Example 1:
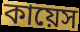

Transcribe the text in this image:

কায়েস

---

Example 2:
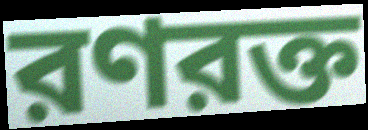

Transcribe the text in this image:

রণরক্ত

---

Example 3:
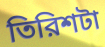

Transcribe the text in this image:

তিরিশটা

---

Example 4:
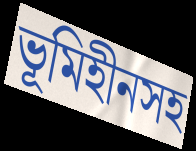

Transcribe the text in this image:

ভূমিহীনসহ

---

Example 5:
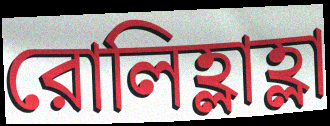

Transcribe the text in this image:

রোলিহ্লাহ্লা